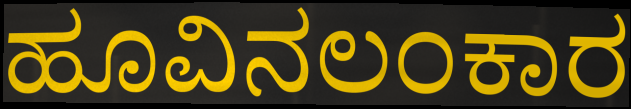
ಹೂವಿನಲಂಕಾರ